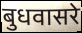
बुधवासरे